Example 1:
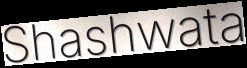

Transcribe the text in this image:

Shashwata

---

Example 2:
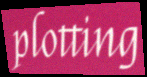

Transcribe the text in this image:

plotting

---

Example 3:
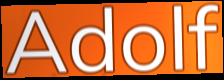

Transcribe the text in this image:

Adolf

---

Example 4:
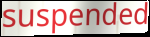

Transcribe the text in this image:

suspended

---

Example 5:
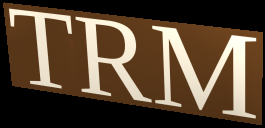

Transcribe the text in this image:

TRM